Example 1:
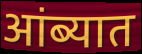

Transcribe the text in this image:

आंब्यात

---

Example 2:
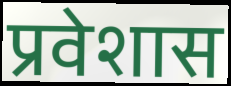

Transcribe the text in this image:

प्रवेशास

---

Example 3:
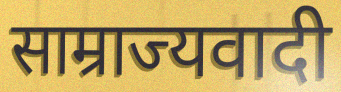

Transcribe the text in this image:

साम्राज्यवादी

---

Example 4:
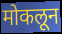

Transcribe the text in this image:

मोकलून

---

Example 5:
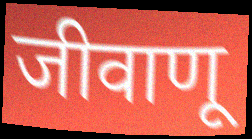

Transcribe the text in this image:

जीवाणू